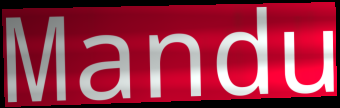
Mandu